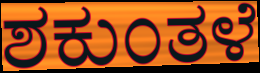
ಶಕುಂತಳೆ